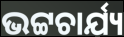
ଭଟ୍ଟଚାର୍ଯ୍ୟ